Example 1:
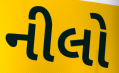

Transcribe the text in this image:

નીલો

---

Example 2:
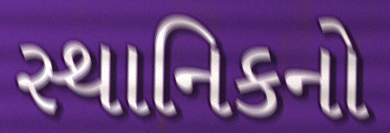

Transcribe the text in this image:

સ્થાનિકનો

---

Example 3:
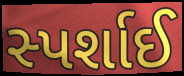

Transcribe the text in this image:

સ્પર્શાઈ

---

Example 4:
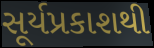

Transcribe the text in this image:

સૂર્યપ્રકાશથી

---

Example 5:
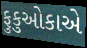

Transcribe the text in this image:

ફુકુઓકાએ